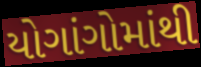
યોગાંગોમાંથી